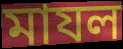
মাযল